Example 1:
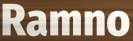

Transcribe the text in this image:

Ramno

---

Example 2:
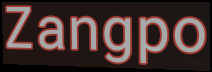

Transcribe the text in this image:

Zangpo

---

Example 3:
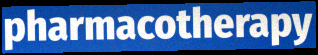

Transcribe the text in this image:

pharmacotherapy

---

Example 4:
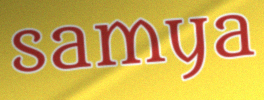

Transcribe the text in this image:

samya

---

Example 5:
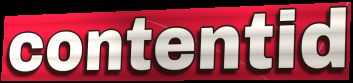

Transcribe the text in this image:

contentid